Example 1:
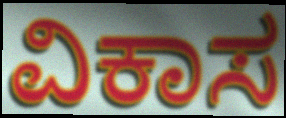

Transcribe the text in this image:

ವಿಕಾಸ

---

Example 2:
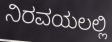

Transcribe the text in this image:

ನಿರವಯಲಲ್ಲಿ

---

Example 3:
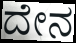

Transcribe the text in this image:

ದೇನ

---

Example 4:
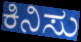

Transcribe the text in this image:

ಕಿನಿಸು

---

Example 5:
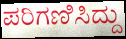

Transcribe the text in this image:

ಪರಿಗಣಿಸಿದ್ದು